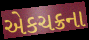
એકચક્રના